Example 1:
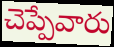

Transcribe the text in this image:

చెప్పేవారు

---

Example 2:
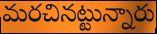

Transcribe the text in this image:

మరచినట్టున్నారు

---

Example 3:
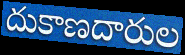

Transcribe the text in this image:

దుకాణదారుల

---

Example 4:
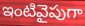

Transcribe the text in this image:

ఇంటివైపుగా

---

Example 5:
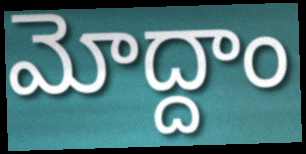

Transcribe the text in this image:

మోద్దాం